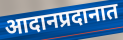
आदानप्रदानात